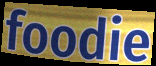
foodie